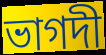
ভাগদী